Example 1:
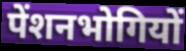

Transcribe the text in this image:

पेंशनभोगियों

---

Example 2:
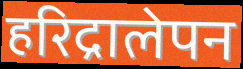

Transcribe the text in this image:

हरिद्रालेपन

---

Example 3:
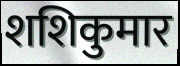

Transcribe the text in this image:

शशिकुमार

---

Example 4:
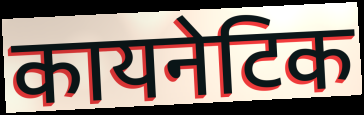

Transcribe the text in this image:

कायनेटिक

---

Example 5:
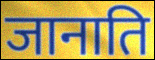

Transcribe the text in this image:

जानाति